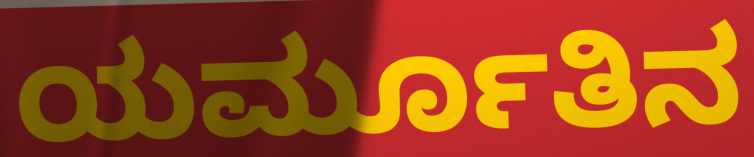
ಯರ್ಮೂತಿನ